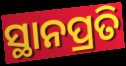
ସ୍ଥାନପ୍ରତି